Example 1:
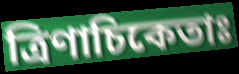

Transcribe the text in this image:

ত্রিণাচিকেতাঃ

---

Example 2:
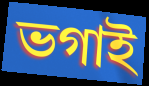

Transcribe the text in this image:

ভগাই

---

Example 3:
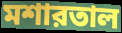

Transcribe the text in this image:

মশারতাল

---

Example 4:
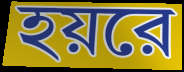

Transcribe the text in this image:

হয়রে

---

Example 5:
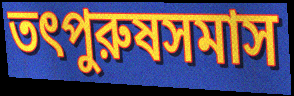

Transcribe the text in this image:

তৎপুরুষসমাস